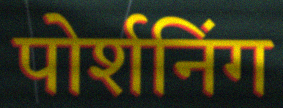
पोर्शनिंग